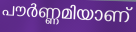
പൗർണ്ണമിയാണ്